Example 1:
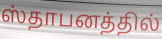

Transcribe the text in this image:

ஸ்தாபனத்தில்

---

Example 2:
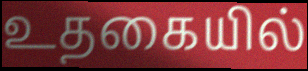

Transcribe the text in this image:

உதகையில்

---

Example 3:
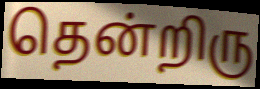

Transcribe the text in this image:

தென்றிரு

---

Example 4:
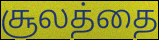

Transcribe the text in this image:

சூலத்தை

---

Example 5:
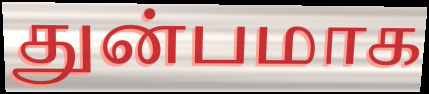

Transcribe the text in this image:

துன்பமாக